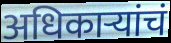
अधिकाऱ्यांचं